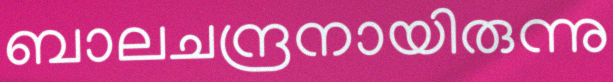
ബാലചന്ദ്രനായിരുന്നു